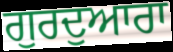
ਗੁਰਦੁਆਰਾ